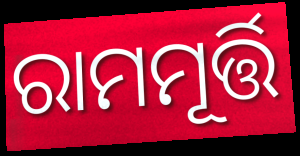
ରାମମୂର୍ତ୍ତି